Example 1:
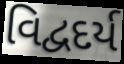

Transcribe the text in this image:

વિદ્વદર્ય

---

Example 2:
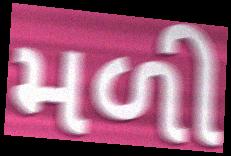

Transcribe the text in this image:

મળી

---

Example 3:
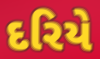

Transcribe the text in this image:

દરિયે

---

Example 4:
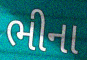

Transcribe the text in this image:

ભીના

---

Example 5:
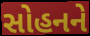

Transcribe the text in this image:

સોહનને